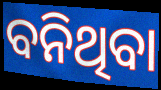
ବନିଥିବା